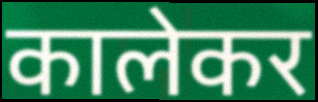
कालेकर